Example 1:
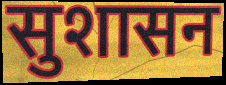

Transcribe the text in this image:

सुशासन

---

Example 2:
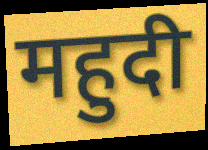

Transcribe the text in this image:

महुदी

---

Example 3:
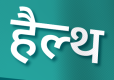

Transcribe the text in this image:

हैल्थ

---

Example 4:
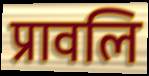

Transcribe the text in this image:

प्रावलि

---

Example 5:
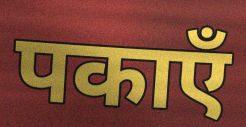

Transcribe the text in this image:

पकाएँ